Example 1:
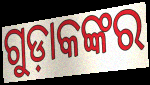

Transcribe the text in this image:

ଗୁଡ଼ାକଙ୍କର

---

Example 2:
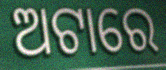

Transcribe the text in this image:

ଅଟାରେ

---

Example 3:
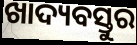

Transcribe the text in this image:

ଖାଦ୍ୟବସ୍ତୁର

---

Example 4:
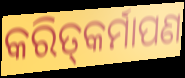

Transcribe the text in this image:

କରିତ୍‌କର୍ମାପଣ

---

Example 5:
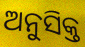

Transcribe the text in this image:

ଅନୁସିକ୍ତ